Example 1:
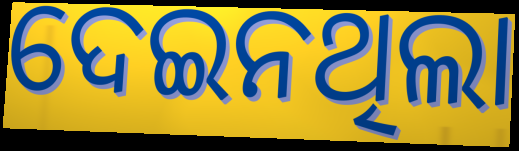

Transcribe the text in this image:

ଦେଇନଥିଲା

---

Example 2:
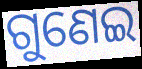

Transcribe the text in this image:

ଗୁଣେଇ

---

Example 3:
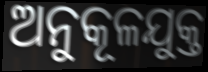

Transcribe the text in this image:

ଅନୁକୂଳଯୁକ୍ତ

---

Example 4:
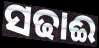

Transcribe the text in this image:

ସଢାଈ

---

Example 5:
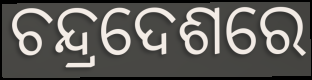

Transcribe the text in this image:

ଚନ୍ଦ୍ରଦେଶରେ